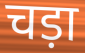
चड़ा